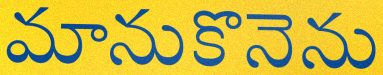
మానుకొనెను